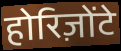
होरिज़ोंटे